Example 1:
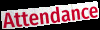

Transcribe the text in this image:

Attendance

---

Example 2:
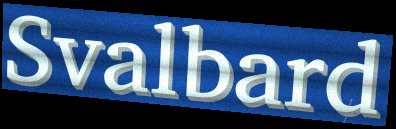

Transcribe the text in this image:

Svalbard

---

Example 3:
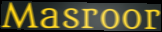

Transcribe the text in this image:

Masroor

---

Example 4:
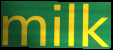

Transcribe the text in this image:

milk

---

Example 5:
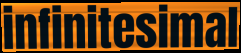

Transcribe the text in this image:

infinitesimal